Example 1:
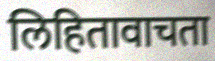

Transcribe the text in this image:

लिहितावाचता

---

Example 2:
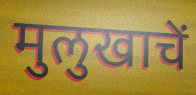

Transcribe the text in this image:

मुलुखाचें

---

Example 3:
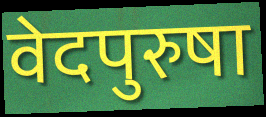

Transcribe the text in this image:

वेदपुरुषा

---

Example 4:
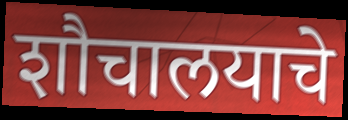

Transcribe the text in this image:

शौचालयाचे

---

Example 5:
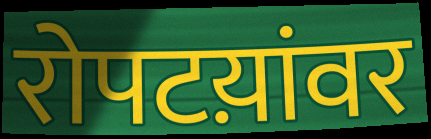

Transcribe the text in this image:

रोपटय़ांवर